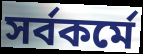
সর্বকর্মে